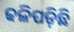
ଢଳିପଡ଼ିଛି